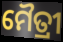
ମୈତ୍ରୀ